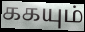
ககயும்